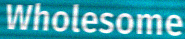
Wholesome